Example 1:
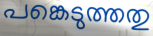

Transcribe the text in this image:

പങ്കെടുത്തതു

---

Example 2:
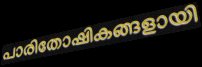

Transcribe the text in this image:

പാരിതോഷികങ്ങളായി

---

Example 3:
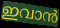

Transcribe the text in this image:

ഇവാൻ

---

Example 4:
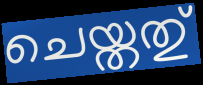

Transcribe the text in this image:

ചെയ്തതു്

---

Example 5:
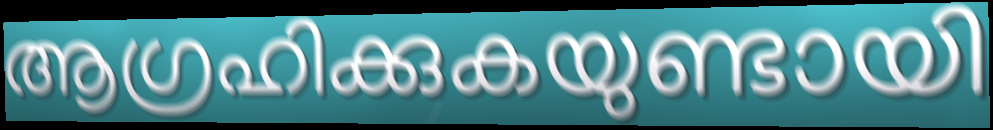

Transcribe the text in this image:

ആഗ്രഹിക്കുകയുണ്ടായി